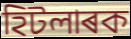
হিটলাৰক